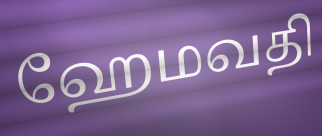
ஹேமவதி